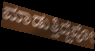
ಮಾಡುತ್ತಿದ್ದೆವೋ